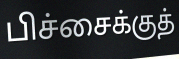
பிச்சைக்குத்